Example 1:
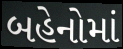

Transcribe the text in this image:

બહેનોમાં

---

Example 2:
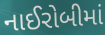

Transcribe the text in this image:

નાઈરોબીમાં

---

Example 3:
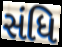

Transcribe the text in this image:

સંધિ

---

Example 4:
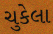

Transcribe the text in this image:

ચુકેલા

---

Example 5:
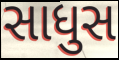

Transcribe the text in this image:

સાધુસ